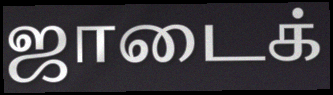
ஜாடைக்